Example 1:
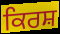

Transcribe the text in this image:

ਕਿਰਸ਼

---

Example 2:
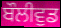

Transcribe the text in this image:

ਬੌਲੀਵੁਡ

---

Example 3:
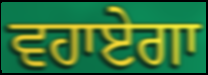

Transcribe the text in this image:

ਵਹਾਏਗਾ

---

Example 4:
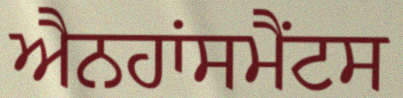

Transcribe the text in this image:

ਐਨਹਾਂਸਮੈਂਟਸ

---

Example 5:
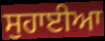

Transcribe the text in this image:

ਸੁਹਾਈਆ